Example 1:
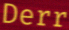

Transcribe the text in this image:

Derr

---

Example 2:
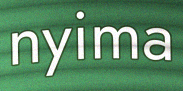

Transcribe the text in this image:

nyima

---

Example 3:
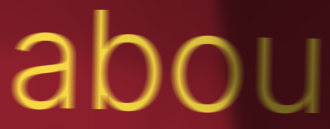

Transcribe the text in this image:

abou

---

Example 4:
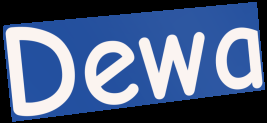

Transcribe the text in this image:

Dewa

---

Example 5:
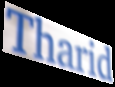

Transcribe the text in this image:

Tharid